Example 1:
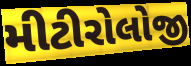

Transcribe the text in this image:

મીટીરોલોજી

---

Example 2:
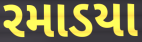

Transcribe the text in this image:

રમાડયા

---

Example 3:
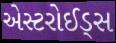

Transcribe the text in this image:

એસ્ટરોઈડ્સ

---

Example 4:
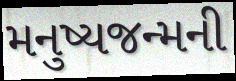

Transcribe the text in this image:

મનુષ્યજન્મની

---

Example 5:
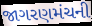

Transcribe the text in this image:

જાગરણમંચની